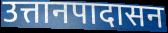
उत्तानपादासन